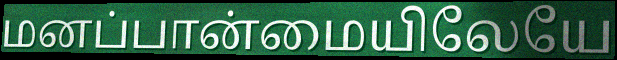
மனப்பான்மையிலேயே